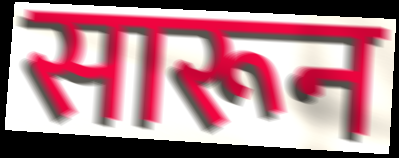
सारून